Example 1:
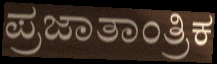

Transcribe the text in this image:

ಪ್ರಜಾತಾಂತ್ರಿಕ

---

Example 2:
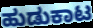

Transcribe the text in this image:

ಹುಡುಕಾಟ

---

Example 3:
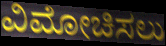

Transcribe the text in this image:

ವಿಮೋಚಿಸಲು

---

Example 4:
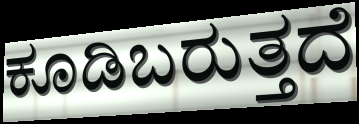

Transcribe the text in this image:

ಕೂಡಿಬರುತ್ತದೆ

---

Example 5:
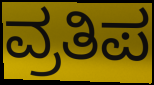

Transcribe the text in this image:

ವ್ರತಿಪ